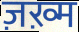
ज़ख़्म